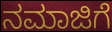
ನಮಾಜಿಗೆ